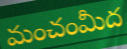
మంచంమీద